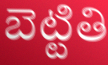
బెట్టితి